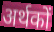
अर्थकों